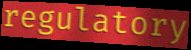
regulatory